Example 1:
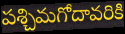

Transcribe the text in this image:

పశ్చిమగోదావరికి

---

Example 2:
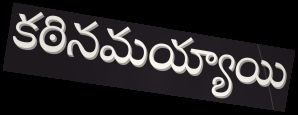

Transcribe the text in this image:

కఠినమయ్యాయి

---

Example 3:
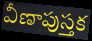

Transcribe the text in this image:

వీణాపుస్తక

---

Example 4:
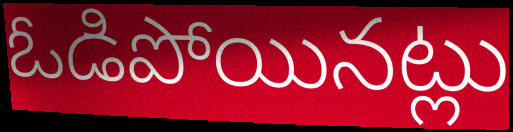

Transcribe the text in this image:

ఓడిపోయినట్లు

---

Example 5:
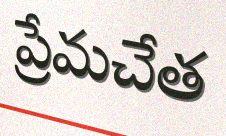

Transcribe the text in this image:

ప్రేమచేత